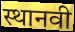
स्थानवी